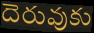
దెరువుకు